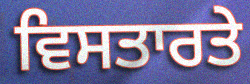
ਵਿਸਤਾਰਤੇ